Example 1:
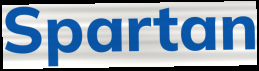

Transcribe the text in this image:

Spartan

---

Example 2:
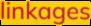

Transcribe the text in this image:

linkages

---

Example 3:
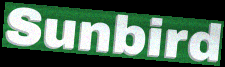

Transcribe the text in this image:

Sunbird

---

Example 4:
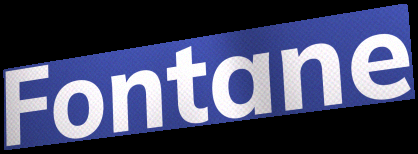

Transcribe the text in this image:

Fontane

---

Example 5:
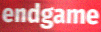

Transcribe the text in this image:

endgame